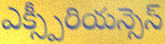
ఎక్స్పీరియన్సెస్